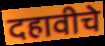
दहावीचे